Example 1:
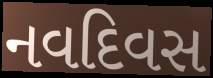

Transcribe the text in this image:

નવદિવસ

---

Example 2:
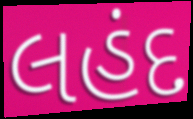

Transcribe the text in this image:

લહંદ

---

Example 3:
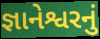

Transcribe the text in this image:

જ્ઞાનેશ્વરનું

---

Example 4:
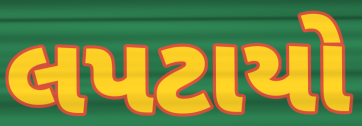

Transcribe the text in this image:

લપટાયો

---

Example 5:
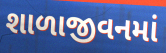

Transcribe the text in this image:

શાળાજીવનમાં